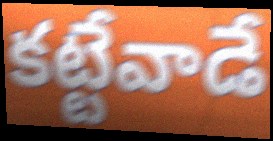
కట్టేవాడే